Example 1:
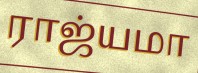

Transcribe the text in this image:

ராஜ்யமா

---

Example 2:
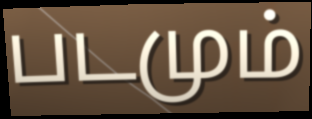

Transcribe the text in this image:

படமும்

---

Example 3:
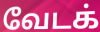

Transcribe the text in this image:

வேடக்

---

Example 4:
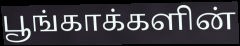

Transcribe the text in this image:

பூங்காக்களின்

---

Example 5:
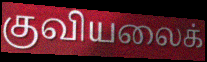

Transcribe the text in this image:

குவியலைக்